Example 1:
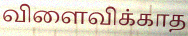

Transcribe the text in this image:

விளைவிக்காத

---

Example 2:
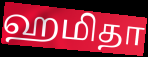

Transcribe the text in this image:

ஹமிதா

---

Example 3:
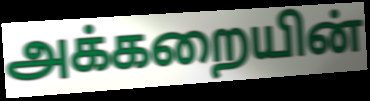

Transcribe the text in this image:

அக்கறையின்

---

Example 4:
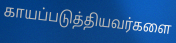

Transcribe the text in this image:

காயப்படுத்தியவர்களை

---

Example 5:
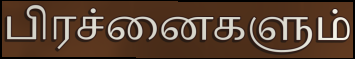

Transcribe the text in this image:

பிரச்னைகளும்